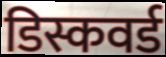
डिस्कवर्ड